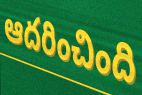
ఆదరించింది